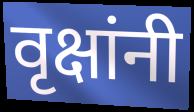
वृक्षांनी